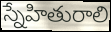
స్నేహితురాలి